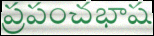
ప్రపంచభాష